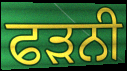
ਫੜਨੀ